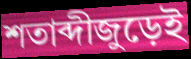
শতাব্দীজুড়েই